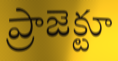
ప్రాజెక్టూ